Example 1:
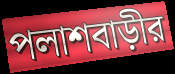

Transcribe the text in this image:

পলাশবাড়ীর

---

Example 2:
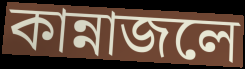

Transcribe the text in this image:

কান্নাজলে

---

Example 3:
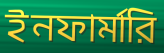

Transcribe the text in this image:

ইনফার্মারি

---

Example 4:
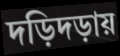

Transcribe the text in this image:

দড়িদড়ায়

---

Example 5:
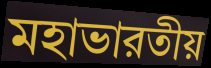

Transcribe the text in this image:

মহাভারতীয়